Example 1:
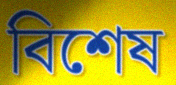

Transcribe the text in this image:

বিশেষ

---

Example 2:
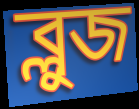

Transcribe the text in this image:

ব্লুজ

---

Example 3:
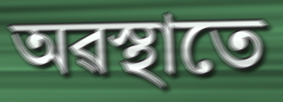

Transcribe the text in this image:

অৱস্থাতে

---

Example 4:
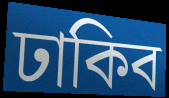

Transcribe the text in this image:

ঢাকিব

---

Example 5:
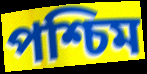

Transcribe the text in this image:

পশ্চিম